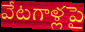
వేటగాళ్లపై